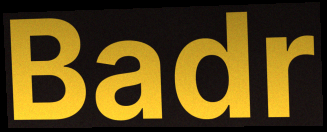
Badr